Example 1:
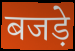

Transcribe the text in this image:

बजड़े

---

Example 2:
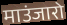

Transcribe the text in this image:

माउंजारो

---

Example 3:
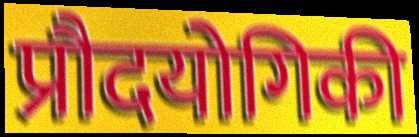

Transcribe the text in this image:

प्रौदयोगिकी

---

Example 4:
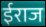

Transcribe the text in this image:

ईराज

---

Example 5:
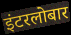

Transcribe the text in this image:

इंटरलोबार